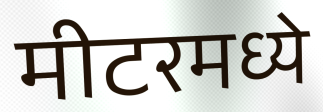
मीटरमध्ये